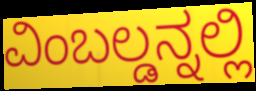
ವಿಂಬಲ್ಡನ್ನಲ್ಲಿ